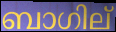
ബാഗില്